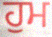
ਹੁਮ